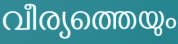
വീര്യത്തെയും